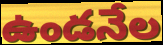
ఉండనేల